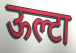
ऊल्टा